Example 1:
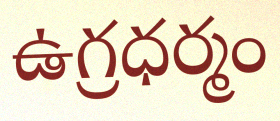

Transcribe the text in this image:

ఉగ్రధర్మం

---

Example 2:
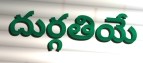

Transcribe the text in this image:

దుర్గతియే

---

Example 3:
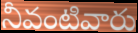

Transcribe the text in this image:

నీవంటివారు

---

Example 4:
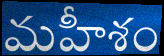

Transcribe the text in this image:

మహీశం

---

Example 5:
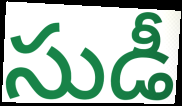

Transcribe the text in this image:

సుడీ